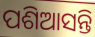
ପଶିଆସନ୍ତି